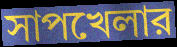
সাপখেলার